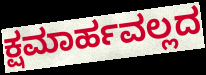
ಕ್ಷಮಾರ್ಹವಲ್ಲದ